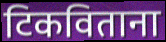
टिकविताना